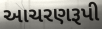
આચરણરૂપી